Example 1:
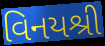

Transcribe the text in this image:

વિનયશ્રી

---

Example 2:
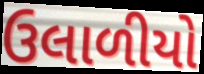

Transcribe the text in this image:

ઉલાળીયો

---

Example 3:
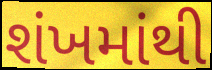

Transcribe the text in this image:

શંખમાંથી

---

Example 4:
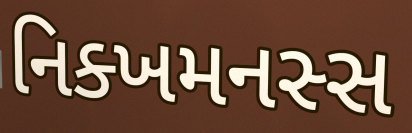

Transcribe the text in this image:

નિક્ખમનસ્સ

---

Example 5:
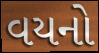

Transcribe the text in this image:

વયનો